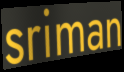
sriman